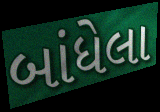
બાંધેલા